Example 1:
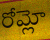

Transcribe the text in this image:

రోమ్లో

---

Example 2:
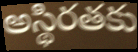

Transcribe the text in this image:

అస్థిరతకు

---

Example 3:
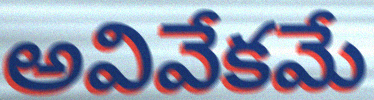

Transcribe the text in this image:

అవివేకమే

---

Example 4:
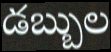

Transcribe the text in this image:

డబ్బుల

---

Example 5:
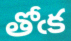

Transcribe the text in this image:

తోఁక